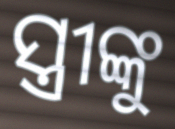
ସ୍ତ୍ରୀଙ୍କୁ